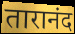
तारानंद